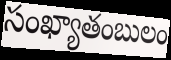
సంఖ్యాతంబులం